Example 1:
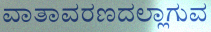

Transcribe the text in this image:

ವಾತಾವರಣದಲ್ಲಾಗುವ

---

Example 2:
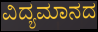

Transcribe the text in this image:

ವಿದ್ಯಮಾನದ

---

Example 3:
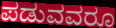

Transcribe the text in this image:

ಪಡುವವರೂ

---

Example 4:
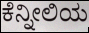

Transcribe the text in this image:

ಕೆನ್ನೀಲಿಯ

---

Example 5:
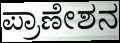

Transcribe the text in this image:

ಪ್ರಾಣೇಶನ